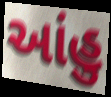
આંહુ